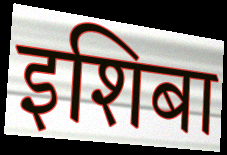
इशिबा